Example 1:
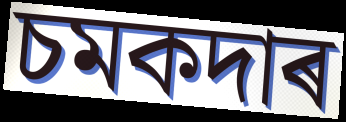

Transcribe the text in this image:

চমকদাৰ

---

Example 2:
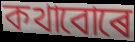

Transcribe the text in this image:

কথাবোৰে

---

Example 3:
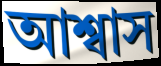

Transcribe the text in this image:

আশ্বাস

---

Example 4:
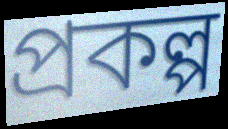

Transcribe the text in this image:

প্ৰকল্প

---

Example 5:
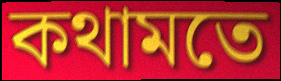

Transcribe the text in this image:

কথামতে